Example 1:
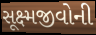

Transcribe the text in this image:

સૂક્ષ્મજીવોની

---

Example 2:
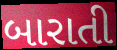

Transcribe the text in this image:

બારાતી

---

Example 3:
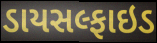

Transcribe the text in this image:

ડાયસલ્ફાઇડ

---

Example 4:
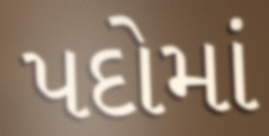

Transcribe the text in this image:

પદોમાં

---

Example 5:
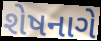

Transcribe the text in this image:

શેષનાગે